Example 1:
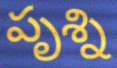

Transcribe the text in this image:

పృశ్ని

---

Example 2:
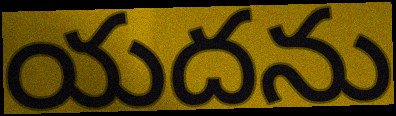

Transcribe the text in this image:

యదను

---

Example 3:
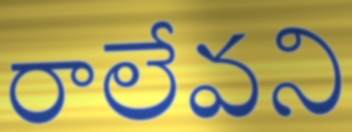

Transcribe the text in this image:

రాలేవని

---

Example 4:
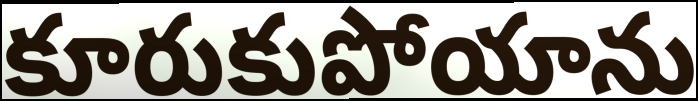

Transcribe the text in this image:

కూరుకుపోయాను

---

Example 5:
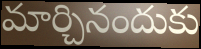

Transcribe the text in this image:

మార్చినందుకు